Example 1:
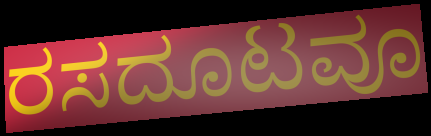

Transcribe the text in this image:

ರಸದೂಟವೂ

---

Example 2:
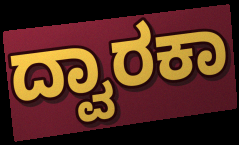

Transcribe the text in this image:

ದ್ವಾರಕಾ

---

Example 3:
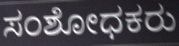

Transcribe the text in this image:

ಸಂಶೋಧಕರು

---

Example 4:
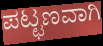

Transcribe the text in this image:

ಪಟ್ಟಣವಾಗಿ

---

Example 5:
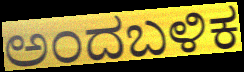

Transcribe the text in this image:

ಅಂದಬಳಿಕ